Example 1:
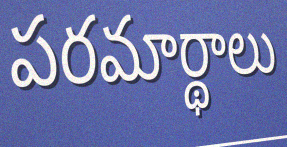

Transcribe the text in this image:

పరమార్థాలు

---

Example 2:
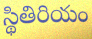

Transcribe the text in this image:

స్థితిరియం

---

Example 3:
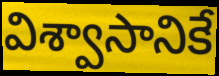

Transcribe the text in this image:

విశ్వాసానికే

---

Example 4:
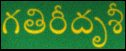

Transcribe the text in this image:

గతిరీదృశీ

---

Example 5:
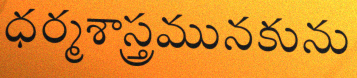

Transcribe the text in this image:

ధర్మశాస్త్రమునకును